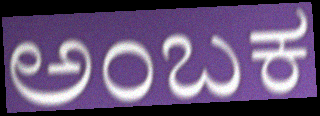
ಅಂಬಕ